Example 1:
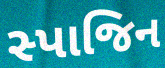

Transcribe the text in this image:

સ્પાજિન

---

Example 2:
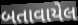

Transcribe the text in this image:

બતાવાયેલ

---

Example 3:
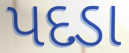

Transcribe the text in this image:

પદડા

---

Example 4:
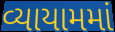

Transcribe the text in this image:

વ્યાયામમાં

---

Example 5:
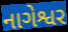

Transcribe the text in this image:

નાગેશ્વર